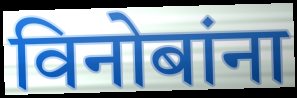
विनोबांना